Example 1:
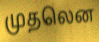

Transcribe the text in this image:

முதலென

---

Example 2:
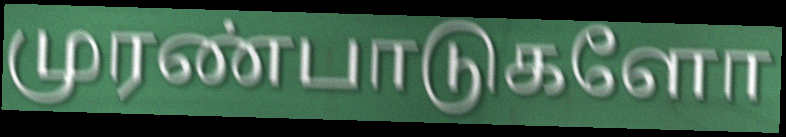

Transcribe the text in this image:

முரண்பாடுகளோ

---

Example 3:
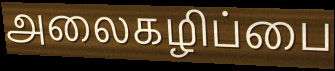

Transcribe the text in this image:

அலைகழிப்பை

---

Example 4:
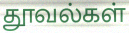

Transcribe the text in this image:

தூவல்கள்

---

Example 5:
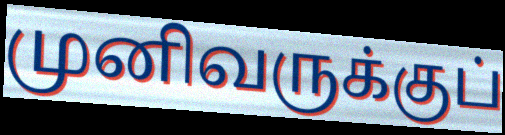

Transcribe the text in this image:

முனிவருக்குப்